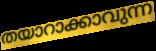
തയാറാക്കാവുന്ന